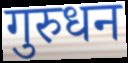
गुरुधन